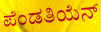
ಪೆಂಡತಿಯೆನ್